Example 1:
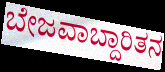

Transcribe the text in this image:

ಬೇಜವಾಬ್ದಾರಿತನ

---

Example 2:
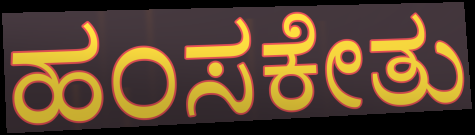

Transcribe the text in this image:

ಹಂಸಕೇತು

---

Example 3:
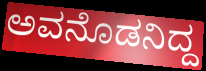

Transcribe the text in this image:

ಅವನೊಡನಿದ್ದ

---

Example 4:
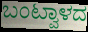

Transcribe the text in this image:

ಬಂಟ್ವಾಳದ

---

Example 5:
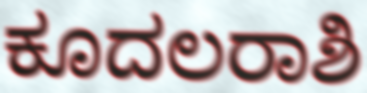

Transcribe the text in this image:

ಕೂದಲರಾಶಿ